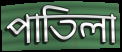
পাতিলা